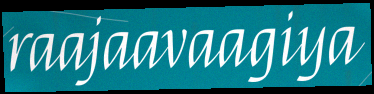
raajaavaagiya